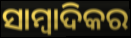
ସାମ୍ବାଦିକର